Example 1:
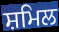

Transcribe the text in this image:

ਸ਼ਮਿਲ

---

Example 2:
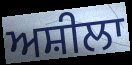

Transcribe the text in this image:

ਅਸ਼ੀਲਾ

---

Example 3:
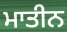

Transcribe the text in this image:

ਮਾਤੀਨ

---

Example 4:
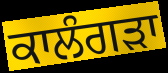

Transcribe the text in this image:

ਕਾਲੰਗੜਾ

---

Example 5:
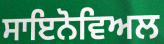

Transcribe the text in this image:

ਸਾਇਨੋਵਿਅਲ